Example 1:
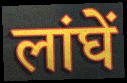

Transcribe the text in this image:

लांघें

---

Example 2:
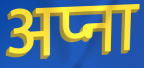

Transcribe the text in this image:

अप्ना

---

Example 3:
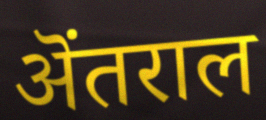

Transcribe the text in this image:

ऄंतराल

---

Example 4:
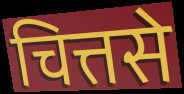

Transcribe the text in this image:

चित्तसे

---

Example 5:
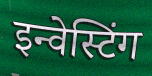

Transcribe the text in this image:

इन्वेस्टिंग